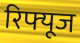
रिफ्यूज